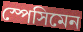
স্পেসিমেন